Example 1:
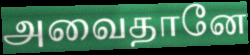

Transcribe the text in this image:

அவைதானே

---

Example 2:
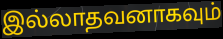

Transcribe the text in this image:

இல்லாதவனாகவும்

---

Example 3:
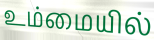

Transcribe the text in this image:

உம்மையில்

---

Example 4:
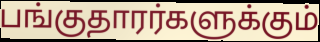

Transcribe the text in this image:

பங்குதாரர்களுக்கும்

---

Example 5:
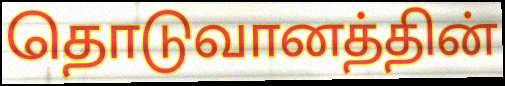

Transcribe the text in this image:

தொடுவானத்தின்